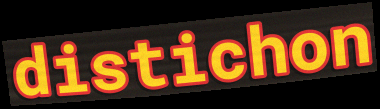
distichon